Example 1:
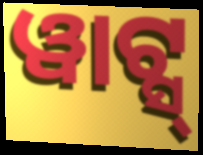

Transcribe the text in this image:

ୱାଟ୍ସ୍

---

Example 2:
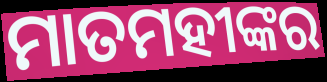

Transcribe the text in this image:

ମାତମହୀଙ୍କର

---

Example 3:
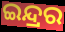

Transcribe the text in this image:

ଇନ୍ଦ୍ରର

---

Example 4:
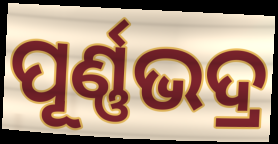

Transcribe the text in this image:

ପୂର୍ଣ୍ଣଭଦ୍ର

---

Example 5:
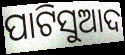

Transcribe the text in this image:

ପାଟିସୁଆଦ